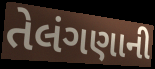
તેલંગણાની